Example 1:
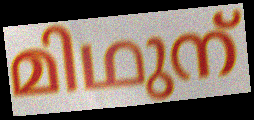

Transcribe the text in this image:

മിഥുന്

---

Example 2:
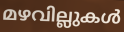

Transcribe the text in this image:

മഴവില്ലുകൾ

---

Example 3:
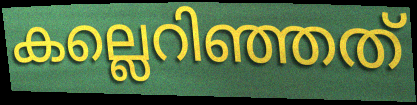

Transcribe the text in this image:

കല്ലെറിഞ്ഞത്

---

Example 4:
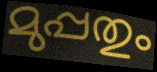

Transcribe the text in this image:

മുപ്പതും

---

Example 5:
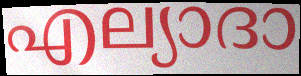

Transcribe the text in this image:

എല്യാദാ